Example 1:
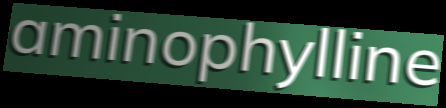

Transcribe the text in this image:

aminophylline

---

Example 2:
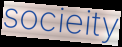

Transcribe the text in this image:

socieity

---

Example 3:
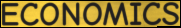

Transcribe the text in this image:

ECONOMICS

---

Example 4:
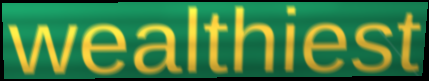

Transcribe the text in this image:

wealthiest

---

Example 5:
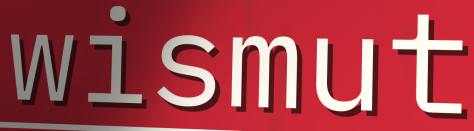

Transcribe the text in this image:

wismut